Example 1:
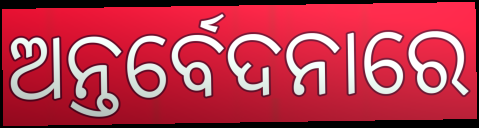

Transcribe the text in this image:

ଅନ୍ତର୍ବେଦନାରେ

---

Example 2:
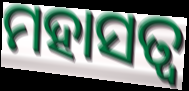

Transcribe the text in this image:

ମହାସତ୍ୱ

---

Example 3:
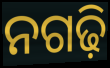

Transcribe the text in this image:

ନଗଢ଼ି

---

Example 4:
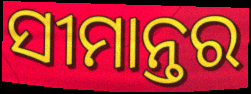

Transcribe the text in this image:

ସୀମାନ୍ତର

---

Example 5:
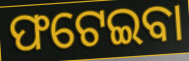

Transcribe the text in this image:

ଫଟେଇବା